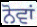
ਨੋਵਾਂ